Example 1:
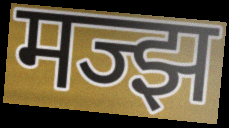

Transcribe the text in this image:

मज्झ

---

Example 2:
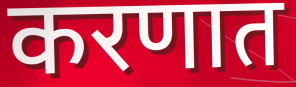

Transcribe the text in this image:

करणात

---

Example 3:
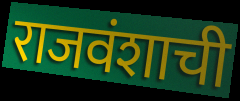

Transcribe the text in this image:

राजवंशाची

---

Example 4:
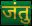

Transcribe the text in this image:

जंतु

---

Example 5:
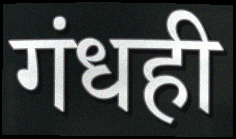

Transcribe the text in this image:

गंधही